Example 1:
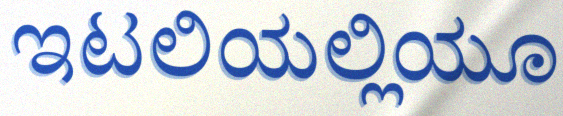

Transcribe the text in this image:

ಇಟಲಿಯಲ್ಲಿಯೂ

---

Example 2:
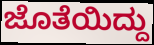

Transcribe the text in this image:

ಜೊತೆಯಿದ್ದು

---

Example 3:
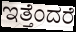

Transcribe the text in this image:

ಇತ್ತೆಂದರೆ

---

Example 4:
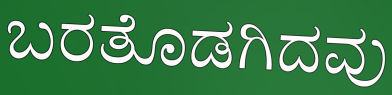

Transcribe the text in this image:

ಬರತೊಡಗಿದವು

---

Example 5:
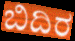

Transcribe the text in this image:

ಬಿದಿರ